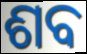
ଶବ